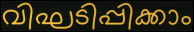
വിഘടിപ്പിക്കാം